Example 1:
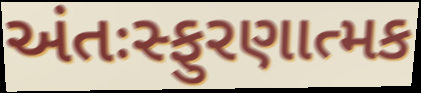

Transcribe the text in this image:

અંતઃસ્ફુરણાત્મક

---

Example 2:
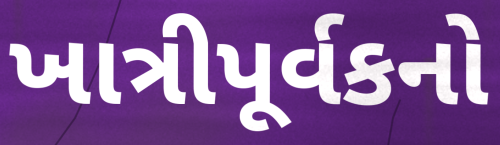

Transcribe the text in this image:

ખાત્રીપૂર્વકનો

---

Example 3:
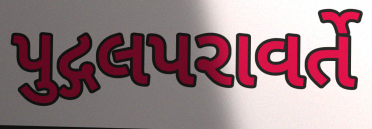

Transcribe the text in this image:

પુદ્ગલપરાવર્તે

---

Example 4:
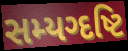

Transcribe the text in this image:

સમ્યગ્દષ્ટિ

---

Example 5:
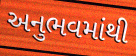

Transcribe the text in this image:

અનુભવમાંથી